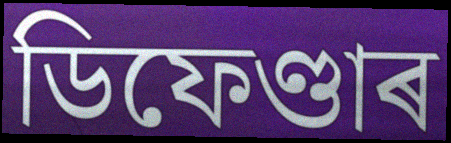
ডিফেণ্ডাৰ